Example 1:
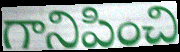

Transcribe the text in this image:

గానిపించి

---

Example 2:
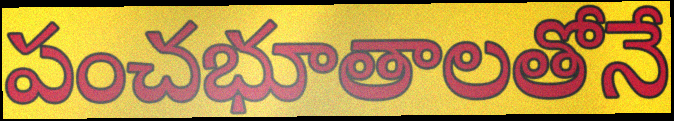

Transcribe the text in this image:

పంచభూతాలతోనే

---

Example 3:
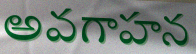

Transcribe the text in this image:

అవగాహన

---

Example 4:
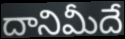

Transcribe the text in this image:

దానిమీదే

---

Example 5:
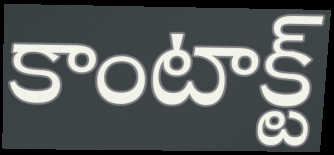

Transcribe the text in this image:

కాంటాక్ట్